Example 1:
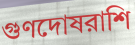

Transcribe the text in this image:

গুণদোষরাশি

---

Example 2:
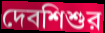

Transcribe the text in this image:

দেবশিশুর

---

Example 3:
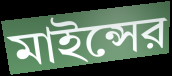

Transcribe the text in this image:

মাইন্সের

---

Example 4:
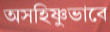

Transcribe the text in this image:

অসহিষ্ণুভাবে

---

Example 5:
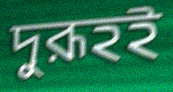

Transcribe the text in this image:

দুরূহই